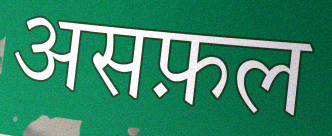
असफ़ल